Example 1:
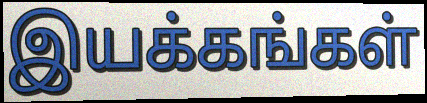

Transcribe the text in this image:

இயக்கங்கள்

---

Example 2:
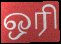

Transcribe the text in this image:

ஒரி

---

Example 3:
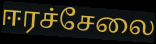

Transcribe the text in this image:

ஈரச்சேலை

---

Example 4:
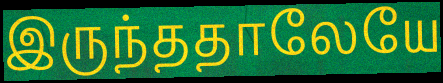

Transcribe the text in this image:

இருந்ததாலேயே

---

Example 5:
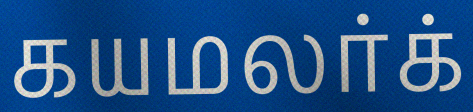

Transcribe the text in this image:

கயமலர்க்